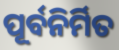
ପୂର୍ବନିର୍ମିତ